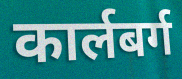
कार्लबर्ग